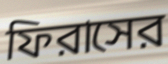
ফিরাসের